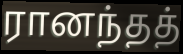
ரானந்தத்